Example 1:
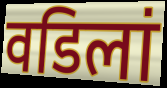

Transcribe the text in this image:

वडिलां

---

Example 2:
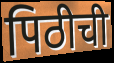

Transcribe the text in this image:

पिठीची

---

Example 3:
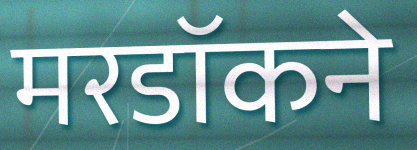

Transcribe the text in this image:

मरडॉकने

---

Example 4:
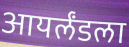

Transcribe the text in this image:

आयर्लंडला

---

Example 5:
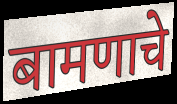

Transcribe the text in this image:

बामणाचे